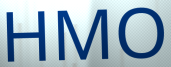
HMO